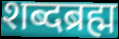
शब्दब्रह्म